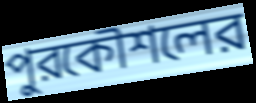
পুরকৌশলের